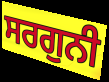
ਸਰਗੁਨੀ